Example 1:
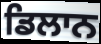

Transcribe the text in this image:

ਡਿਲਾਨ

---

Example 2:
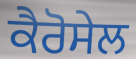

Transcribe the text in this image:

ਕੈਰੋਸੇਲ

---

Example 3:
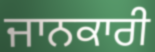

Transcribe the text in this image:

ਜਾਨਕਾਰੀ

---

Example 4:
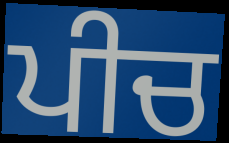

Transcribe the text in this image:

ਪੀਚ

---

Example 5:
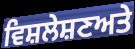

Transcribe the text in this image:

ਵਿਸ਼ਲੇਸ਼ਣਅਤੇ